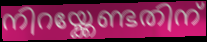
നിറയ്ക്കേണ്ടതിന്